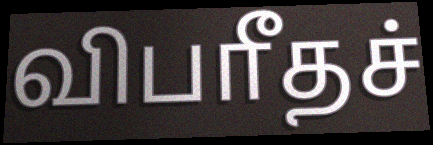
விபரீதச்